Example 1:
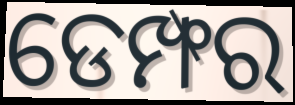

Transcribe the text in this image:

ଡେମ୍ଫର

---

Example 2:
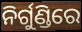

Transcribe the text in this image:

ନିର୍ଗୁଣ୍ଡିରେ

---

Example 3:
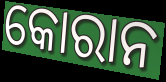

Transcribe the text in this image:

କୋରାନ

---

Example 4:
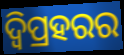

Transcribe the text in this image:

ଦ୍ବିପ୍ରହରର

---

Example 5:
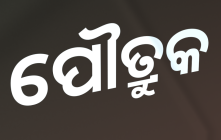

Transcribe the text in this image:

ପୌତ୍ରୁକ